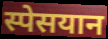
स्पेसयान